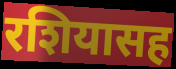
रशियासह